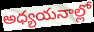
అధ్యయనాల్లో